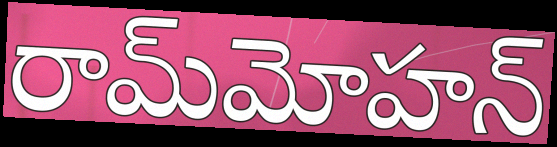
రామ్‌మోహన్